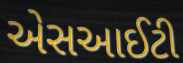
એસઆઈટી